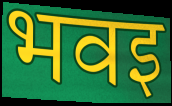
भवइ